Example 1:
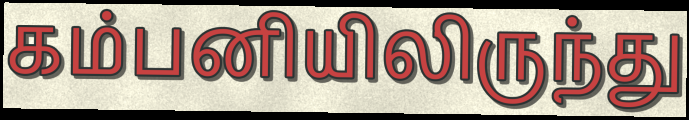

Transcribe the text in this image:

கம்பனியிலிருந்து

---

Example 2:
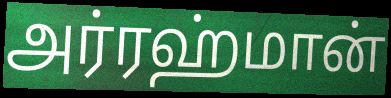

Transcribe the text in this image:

அர்ரஹ்மான்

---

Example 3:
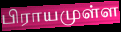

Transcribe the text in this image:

பிராயமுள்ள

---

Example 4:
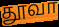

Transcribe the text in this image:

தூவா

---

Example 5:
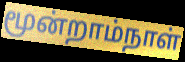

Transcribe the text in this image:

மூன்றாம்நாள்